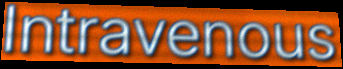
Intravenous